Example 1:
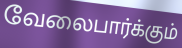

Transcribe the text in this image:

வேலைபார்க்கும்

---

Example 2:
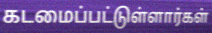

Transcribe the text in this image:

கடமைப்பட்டுள்ளார்கள்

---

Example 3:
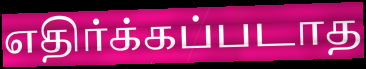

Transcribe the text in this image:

எதிர்க்கப்படாத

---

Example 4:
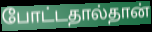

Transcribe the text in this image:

போட்டதால்தான்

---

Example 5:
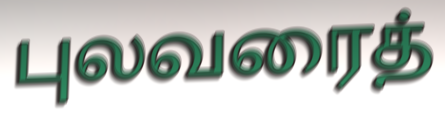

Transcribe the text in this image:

புலவரைத்